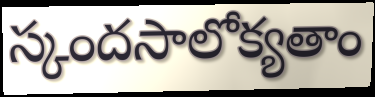
స్కందసాలోక్యతాం